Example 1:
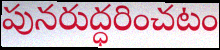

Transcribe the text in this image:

పునరుద్ధరించటం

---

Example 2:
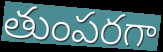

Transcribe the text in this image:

తుంపరగా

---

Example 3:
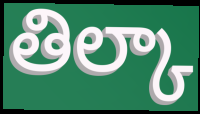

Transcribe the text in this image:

తిల్కా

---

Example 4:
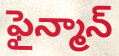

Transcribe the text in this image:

ఫైన్మాన్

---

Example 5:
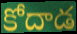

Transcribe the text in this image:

కోదాడ